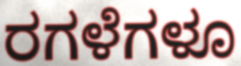
ರಗಳೆಗಳೂ